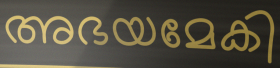
അഭയമേകി